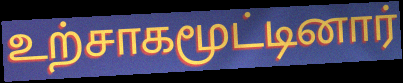
உற்சாகமூட்டினார்